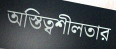
অস্তিত্বশীলতার